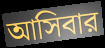
আসিবার